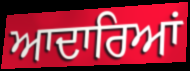
ਆਦਾਰਿਆਂ